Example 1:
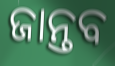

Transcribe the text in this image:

ଜାନ୍ତବ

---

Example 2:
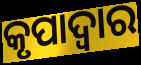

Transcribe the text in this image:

କୃପାଦ୍ଵାର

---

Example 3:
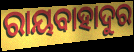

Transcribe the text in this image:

ରାୟବାହାଦୁର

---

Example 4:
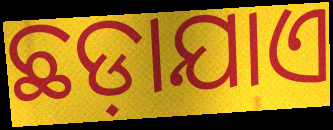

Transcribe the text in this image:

ଛଡ଼ାଯାଏ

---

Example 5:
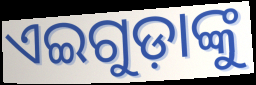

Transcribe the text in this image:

ଏଇଗୁଡ଼ାଙ୍କୁ